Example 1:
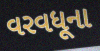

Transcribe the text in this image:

વરવધૂના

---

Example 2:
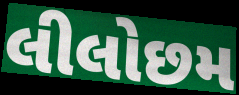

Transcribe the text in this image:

લીલોછમ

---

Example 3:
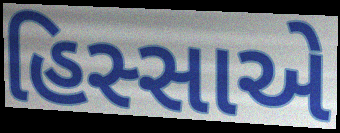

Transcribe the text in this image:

હિસ્સાએ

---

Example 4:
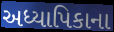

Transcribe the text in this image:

અધ્યાપિકાના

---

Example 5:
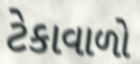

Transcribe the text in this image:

ટેકાવાળો